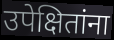
उपेक्षितांना